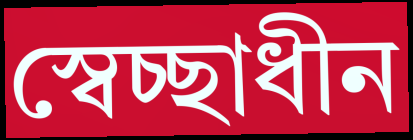
স্বেচ্ছাধীন